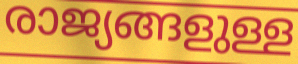
രാജ്യങ്ങളുള്ള